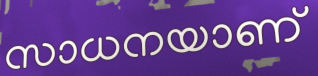
സാധനയാണ്